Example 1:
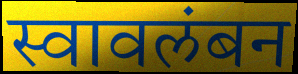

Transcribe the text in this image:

स्वावलंबन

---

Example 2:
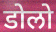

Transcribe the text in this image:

डोलो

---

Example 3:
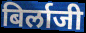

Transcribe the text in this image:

बिर्लाजी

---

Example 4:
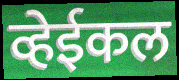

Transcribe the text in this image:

व्हेईकल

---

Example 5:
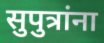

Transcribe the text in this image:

सुपुत्रांना